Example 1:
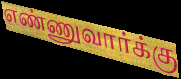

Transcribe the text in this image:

எண்ணுவார்க்கு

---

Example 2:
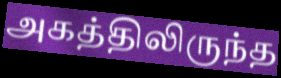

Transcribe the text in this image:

அகத்திலிருந்த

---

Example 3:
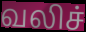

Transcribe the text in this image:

வலிச்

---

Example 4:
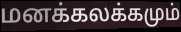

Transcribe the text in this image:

மனக்கலக்கமும்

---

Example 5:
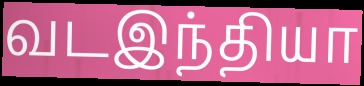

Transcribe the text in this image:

வடஇந்தியா